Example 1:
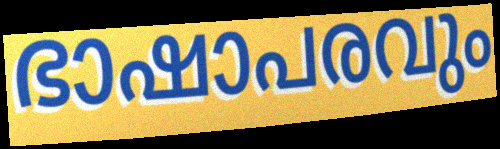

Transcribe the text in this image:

ഭാഷാപരവും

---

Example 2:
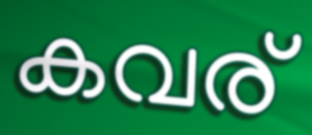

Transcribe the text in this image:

കവര്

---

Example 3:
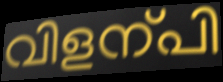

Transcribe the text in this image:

വിളന്പി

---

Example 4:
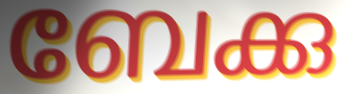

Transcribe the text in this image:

ബേക്കു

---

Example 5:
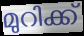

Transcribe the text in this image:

മുറിക്ക്